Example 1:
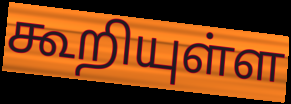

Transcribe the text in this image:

கூறியுள்ள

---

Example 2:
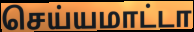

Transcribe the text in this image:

செய்யமாட்டா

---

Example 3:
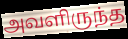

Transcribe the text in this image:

அவளிருந்த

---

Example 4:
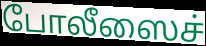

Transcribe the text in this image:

போலீஸைச்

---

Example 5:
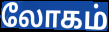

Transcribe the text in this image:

லோகம்